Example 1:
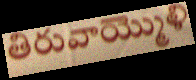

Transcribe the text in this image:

తిరువాయ్మొళి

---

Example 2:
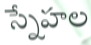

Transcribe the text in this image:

స్నేహల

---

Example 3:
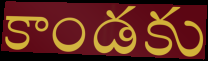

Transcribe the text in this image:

కాండకు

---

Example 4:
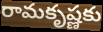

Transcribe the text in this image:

రామకృష్ణకు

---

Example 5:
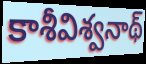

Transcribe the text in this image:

కాశీవిశ్వనాథ్